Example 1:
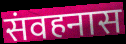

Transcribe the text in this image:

संवहनास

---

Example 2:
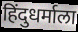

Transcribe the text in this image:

हिंदुधर्माला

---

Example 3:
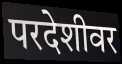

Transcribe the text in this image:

परदेशीवर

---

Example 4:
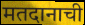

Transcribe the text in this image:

मतदानाची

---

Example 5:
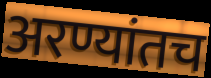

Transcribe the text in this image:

अरण्यांतच